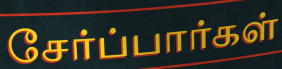
சேர்ப்பார்கள்